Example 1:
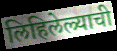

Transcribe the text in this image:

लिहिलेल्याची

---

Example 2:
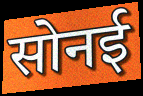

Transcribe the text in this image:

सोनई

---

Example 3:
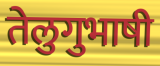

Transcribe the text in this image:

तेलुगुभाषी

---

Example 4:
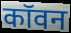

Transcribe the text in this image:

कॉवन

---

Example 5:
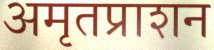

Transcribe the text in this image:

अमृतप्राशन